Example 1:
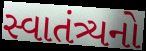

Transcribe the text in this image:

સ્વાતંત્ર્યનો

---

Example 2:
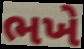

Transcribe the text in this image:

ભખે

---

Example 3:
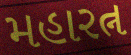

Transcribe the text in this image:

મહારત્ન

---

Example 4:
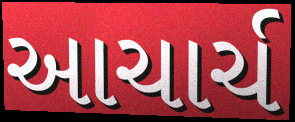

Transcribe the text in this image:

આચાર્ચ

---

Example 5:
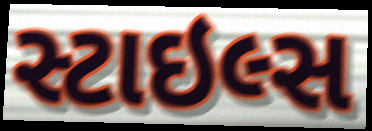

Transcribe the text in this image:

સ્ટાઇલ્સ